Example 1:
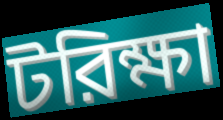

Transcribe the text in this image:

টরিক্ষা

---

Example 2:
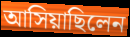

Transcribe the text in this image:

আসিয়াছিলেন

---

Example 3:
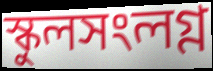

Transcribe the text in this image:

স্কুলসংলগ্ন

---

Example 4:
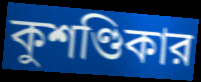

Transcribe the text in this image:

কুশণ্ডিকার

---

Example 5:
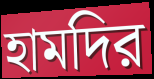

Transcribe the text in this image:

হামদির